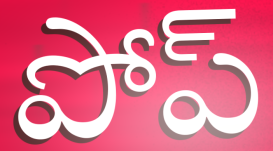
పోప్